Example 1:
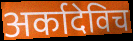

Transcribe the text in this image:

अर्कादेविच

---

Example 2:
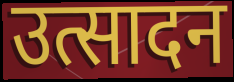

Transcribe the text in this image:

उत्सादन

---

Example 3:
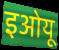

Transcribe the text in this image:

इओयू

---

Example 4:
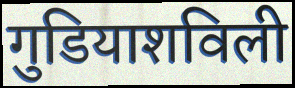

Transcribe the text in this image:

गुडियाशविली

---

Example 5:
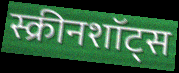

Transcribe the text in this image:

स्क्रीनशॉट्स